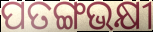
ପତଙ୍ଗଭକ୍ଷୀ